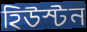
হিউস্টন